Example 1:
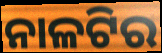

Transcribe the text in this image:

ନାଳଟିର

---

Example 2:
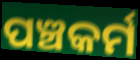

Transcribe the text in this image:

ପଞ୍ଚକର୍ମ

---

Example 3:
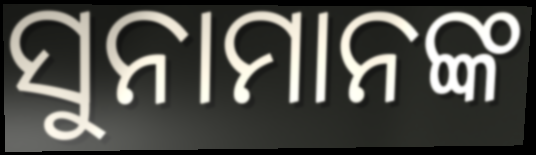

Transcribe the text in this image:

ସୁନାମାନଙ୍କ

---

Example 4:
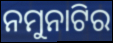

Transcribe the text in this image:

ନମୁନାଟିର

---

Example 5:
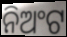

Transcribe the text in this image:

ନିଅଂଟ